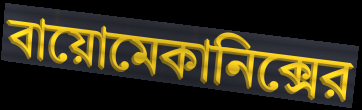
বায়োমেকানিক্সের